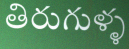
తిరుగుళ్ళ